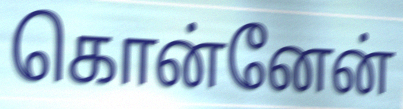
கொன்னேன்